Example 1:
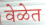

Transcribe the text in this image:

वेळेत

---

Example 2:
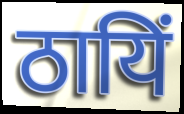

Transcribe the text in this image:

ठायिं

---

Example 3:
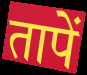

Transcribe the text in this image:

तापें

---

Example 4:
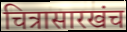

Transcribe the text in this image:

चित्रासारखंच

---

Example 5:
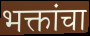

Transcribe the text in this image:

भक्तांचा